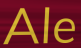
Ale